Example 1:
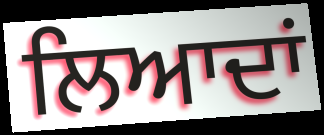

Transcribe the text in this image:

ਲਿਆਦਾਂ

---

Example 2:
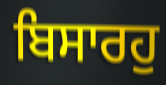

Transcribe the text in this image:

ਬਿਸਾਰਹੁ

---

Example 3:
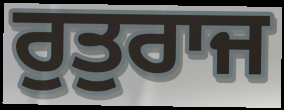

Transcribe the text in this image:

ਰੁਤੁਰਾਜ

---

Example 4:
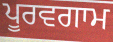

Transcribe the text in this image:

ਪੂਰਵਗਾਮ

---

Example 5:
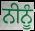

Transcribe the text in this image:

ਨੀਨੂੰ